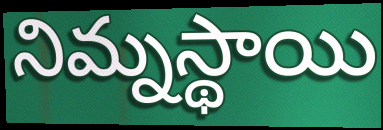
నిమ్నస్థాయి